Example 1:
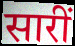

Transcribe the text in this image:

सारीं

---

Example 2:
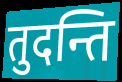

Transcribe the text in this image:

तुदन्ति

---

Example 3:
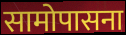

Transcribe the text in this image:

सामोपासना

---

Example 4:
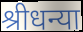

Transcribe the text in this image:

श्रीधन्या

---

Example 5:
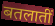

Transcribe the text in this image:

बतलातीं